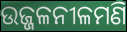
ଉଜ୍ଜଳନୀଳମଣି